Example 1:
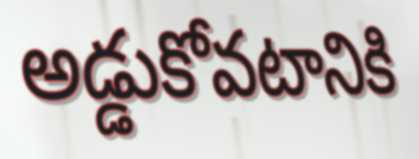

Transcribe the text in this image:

అడ్డుకోవటానికి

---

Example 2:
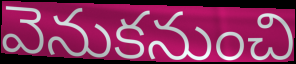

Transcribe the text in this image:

వెనుకనుంచి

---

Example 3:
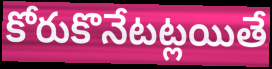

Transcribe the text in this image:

కోరుకొనేటట్లయితే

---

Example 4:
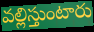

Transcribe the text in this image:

వల్లిస్తుంటారు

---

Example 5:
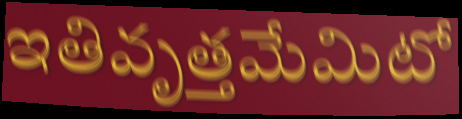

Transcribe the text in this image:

ఇతివృత్తమేమిటో